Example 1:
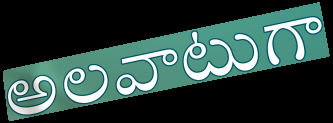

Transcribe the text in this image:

అలవాటుగా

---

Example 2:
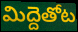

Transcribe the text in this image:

మిద్దెతోట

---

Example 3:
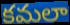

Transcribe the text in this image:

కమలా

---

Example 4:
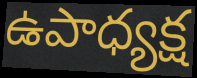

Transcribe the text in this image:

ఉపాధ్యక్ష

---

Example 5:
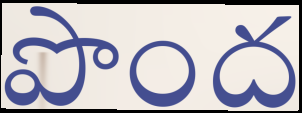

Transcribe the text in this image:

పొంద